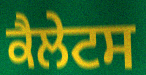
ਕੈਲੇਟਸ